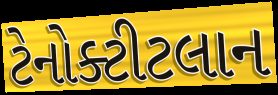
ટેનોક્ટીટલાન